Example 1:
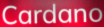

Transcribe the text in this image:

Cardano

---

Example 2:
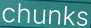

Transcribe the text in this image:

chunks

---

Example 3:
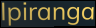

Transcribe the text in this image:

Ipiranga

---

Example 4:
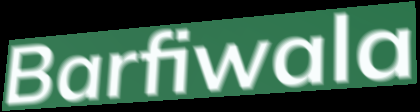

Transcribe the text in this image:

Barfiwala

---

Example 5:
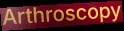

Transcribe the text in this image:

Arthroscopy